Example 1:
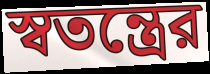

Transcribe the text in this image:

স্বতন্ত্রের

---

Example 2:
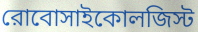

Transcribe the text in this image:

রোবোসাইকোলজিস্ট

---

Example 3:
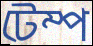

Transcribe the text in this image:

টেম্প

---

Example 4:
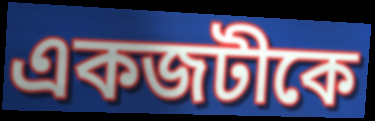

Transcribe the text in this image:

একজটীকে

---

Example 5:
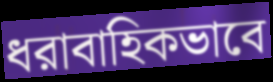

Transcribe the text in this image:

ধরাবাহিকভাবে